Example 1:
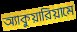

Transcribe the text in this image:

অ্যাকুয়ারিয়ামে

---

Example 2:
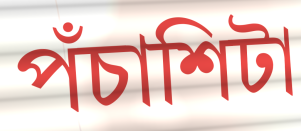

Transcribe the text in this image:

পঁচাশিটা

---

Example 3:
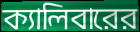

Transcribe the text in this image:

ক্যালিবারের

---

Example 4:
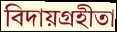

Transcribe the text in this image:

বিদায়গ্রহীতা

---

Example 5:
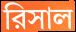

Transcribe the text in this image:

রিসাল